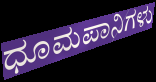
ಧೂಮಪಾನಿಗಳು